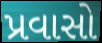
પ્રવાસો